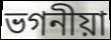
ভগনীয়া